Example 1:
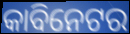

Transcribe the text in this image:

କାବିନେଟର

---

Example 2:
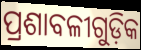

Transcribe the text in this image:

ପ୍ରଶାବଳୀଗୁଡ଼ିକ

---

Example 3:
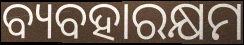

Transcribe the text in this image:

ବ୍ୟବହାରକ୍ଷମ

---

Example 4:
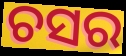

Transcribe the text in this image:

ଚସର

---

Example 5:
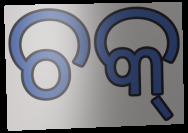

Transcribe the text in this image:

ଚକ୍